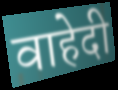
वाहेदी